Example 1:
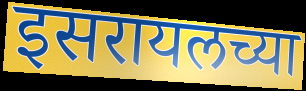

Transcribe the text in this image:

इसरायलच्या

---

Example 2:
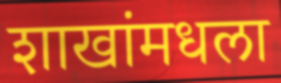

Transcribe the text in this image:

शाखांमधला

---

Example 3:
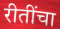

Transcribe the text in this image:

रीतींचा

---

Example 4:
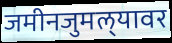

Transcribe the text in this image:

जमीनजुमल्यावर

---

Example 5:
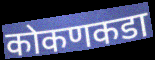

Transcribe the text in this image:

कोकणकडा